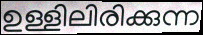
ഉള്ളിലിരിക്കുന്ന